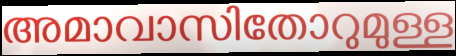
അമാവാസിതോറുമുള്ള